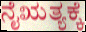
ನೈಋತ್ಯಕ್ಕೆ